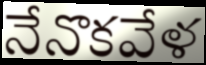
నేనొకవేళ